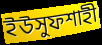
ইউসুফশাহী